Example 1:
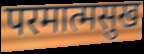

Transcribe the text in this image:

परमात्मसुख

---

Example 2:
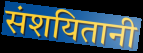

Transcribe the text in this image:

संशयितानी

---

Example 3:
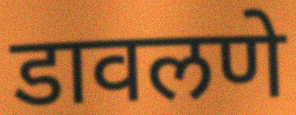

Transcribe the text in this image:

डावलणे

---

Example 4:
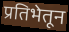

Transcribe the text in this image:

प्रतिभेतून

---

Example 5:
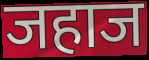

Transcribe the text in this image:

जहाज